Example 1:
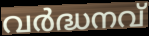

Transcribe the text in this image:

വർദ്ധനവ്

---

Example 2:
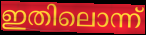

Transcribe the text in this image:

ഇതിലൊന്ന്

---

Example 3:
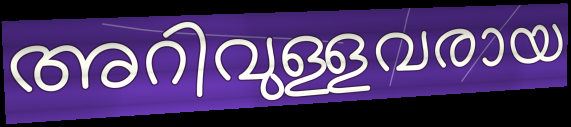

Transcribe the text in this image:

അറിവുള്ളവരായ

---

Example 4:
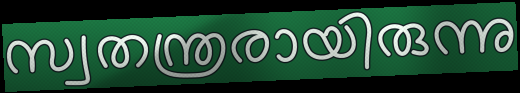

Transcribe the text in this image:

സ്വതന്ത്രരായിരുന്നു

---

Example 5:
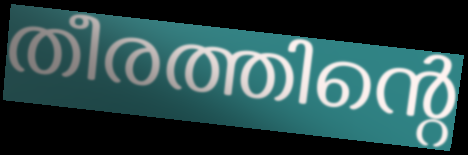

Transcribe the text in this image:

തീരത്തിന്റെ